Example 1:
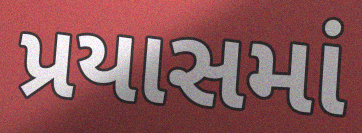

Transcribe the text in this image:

પ્રયાસમાં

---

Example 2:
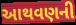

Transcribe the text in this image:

આથવણની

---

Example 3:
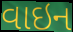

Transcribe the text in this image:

વાઇન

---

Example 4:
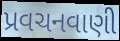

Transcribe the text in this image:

પ્રવચનવાણી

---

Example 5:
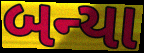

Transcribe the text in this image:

બન્યા